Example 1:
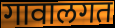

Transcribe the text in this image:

गावालगत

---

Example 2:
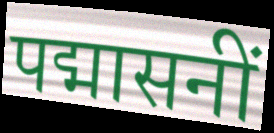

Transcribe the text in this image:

पद्मासनीं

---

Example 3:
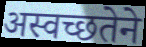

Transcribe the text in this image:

अस्वच्छतेने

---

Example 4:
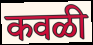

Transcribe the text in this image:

कवळी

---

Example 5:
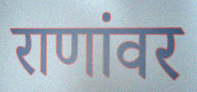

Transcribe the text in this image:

राणांवर